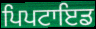
ਪਿਪਟਾਇਡ